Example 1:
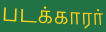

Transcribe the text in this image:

படக்காரர்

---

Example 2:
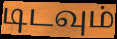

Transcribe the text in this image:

டிடவும்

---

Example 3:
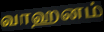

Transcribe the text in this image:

வாஹனம்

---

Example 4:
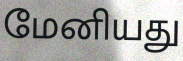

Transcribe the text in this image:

மேனியது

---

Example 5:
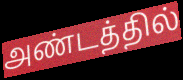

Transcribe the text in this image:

அண்டத்தில்